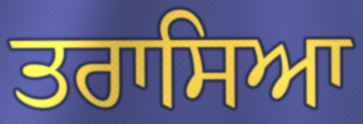
ਤਰਾਸਿਆ